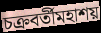
চক্রবর্তীমহাশয়